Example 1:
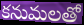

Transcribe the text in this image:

కనుమలతో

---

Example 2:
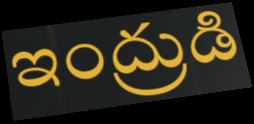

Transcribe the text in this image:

ఇంద్రుడి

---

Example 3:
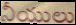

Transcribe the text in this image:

నీయులు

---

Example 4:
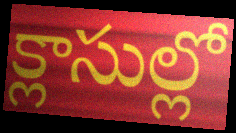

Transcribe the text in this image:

క్లాసుల్లో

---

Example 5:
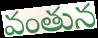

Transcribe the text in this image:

వంతున